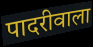
पादरीवाला